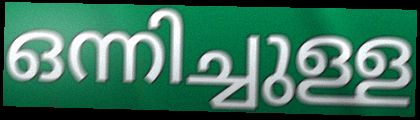
ഒന്നിച്ചുള്ള